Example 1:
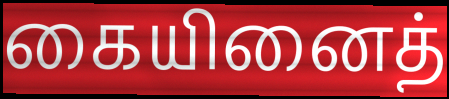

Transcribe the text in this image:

கையினைத்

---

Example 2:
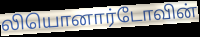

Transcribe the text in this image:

லியொனார்டோவின்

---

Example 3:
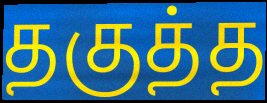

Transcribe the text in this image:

தகுத்த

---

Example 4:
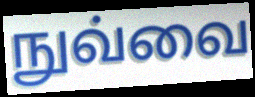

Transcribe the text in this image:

நுவ்வை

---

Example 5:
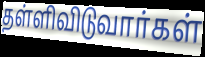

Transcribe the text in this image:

தள்ளிவிடுவார்கள்